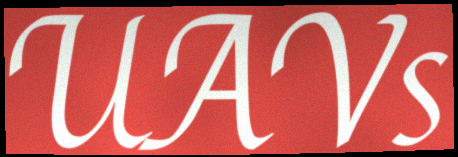
UAVs